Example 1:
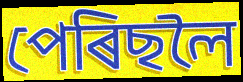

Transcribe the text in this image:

পেৰিছলৈ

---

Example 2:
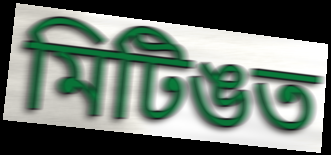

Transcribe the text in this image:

মিটিঙত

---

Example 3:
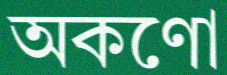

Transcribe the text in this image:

অকণো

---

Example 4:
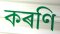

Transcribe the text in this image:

কৰণি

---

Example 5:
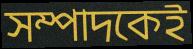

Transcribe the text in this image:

সম্পাদকেই